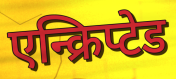
एन्क्रिप्टेड